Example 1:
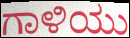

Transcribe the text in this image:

ಗಾಳಿಯು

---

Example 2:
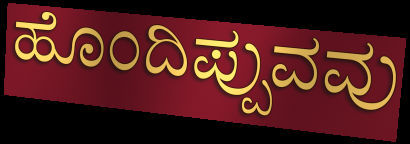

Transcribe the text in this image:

ಹೊಂದಿಪ್ಪುವವು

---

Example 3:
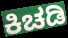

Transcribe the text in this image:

ಕಿಚಡಿ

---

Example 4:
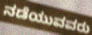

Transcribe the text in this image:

ನಡೆಯುವವರು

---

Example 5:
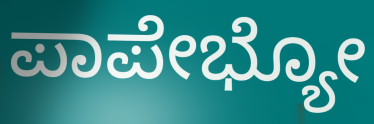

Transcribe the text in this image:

ಪಾಪೇಭ್ಯೋ